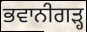
ਭਵਾਨੀਗੜ੍ਹ